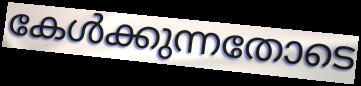
കേൾക്കുന്നതോടെ